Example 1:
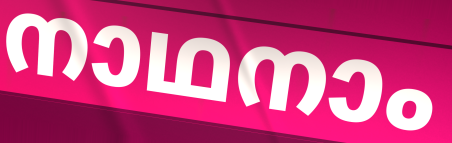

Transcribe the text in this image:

നാഥനാം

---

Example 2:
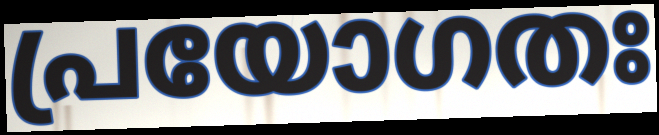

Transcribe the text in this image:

പ്രയോഗതഃ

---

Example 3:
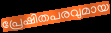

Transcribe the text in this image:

പ്രേഷിതപരവുമായ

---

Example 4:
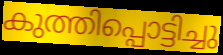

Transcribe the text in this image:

കുത്തിപ്പൊട്ടിച്ചു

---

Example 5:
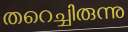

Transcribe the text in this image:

തറെച്ചിരുന്നു